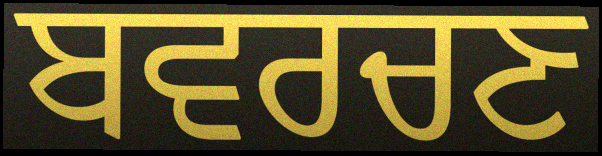
ਬਵਰਚਣ